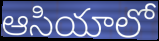
ఆసియాలో